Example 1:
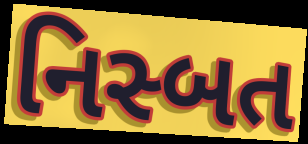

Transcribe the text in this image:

નિસ્બત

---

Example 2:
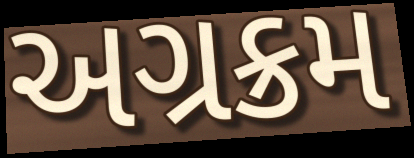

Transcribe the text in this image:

અગ્રક્રમ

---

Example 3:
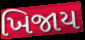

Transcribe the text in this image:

ખિજાય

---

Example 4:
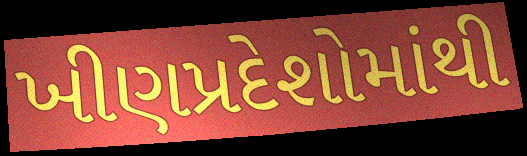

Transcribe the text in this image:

ખીણપ્રદેશોમાંથી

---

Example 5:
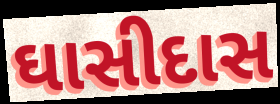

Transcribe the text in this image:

ઘાસીદાસ